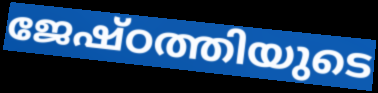
ജേഷ്ഠത്തിയുടെ